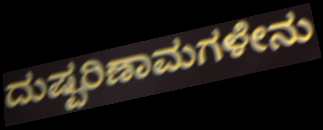
ದುಷ್ಪರಿಣಾಮಗಳೇನು